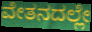
ವೇತನದಲ್ಲೇ